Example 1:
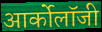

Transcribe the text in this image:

आर्कोलॉजी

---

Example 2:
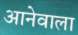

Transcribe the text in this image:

आनेवाला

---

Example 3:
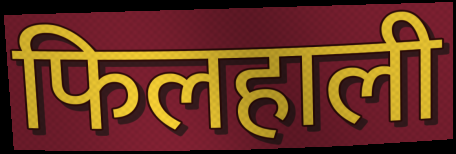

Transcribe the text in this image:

फिलहाली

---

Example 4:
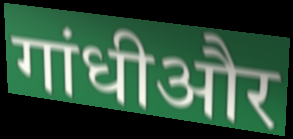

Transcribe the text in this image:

गांधीऔर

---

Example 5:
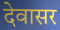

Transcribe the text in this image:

देवासर